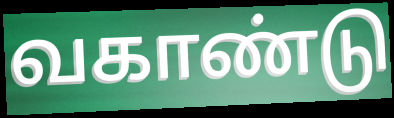
வகாண்டு